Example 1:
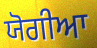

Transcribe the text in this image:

ਯੋਗੀਆ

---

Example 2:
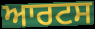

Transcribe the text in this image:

ਆਰਟਸ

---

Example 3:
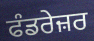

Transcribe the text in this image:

ਫੰਡਰੇਜ਼ਰ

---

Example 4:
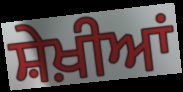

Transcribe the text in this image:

ਸ਼ੇਖ਼ੀਆਂ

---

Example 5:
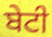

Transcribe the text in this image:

ਬੇਟੀ